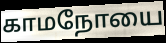
காமநோயை